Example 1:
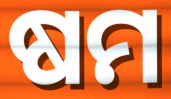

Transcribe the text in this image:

ଷମ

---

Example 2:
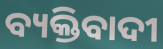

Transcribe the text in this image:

ବ୍ୟକ୍ତିବାଦୀ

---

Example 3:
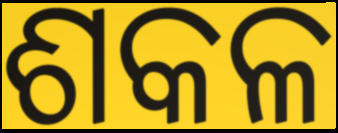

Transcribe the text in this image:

ଶକଳ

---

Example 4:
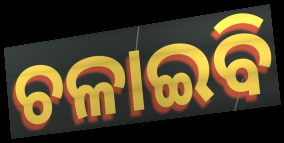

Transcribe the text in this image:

ଚଳାଇବି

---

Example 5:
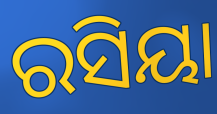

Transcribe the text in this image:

ରସିୟା